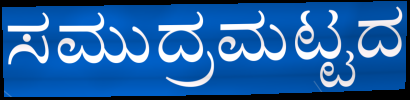
ಸಮುದ್ರಮಟ್ಟದ